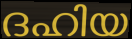
ദഹിയ